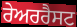
ਰੇਅਰਰੈਸਟ